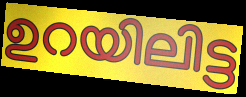
ഉറയിലിട്ട